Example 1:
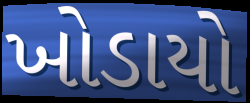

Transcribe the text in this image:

ખોડાયો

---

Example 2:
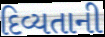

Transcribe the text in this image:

દિવ્યતાની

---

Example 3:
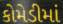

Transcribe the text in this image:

કોમેડીમાં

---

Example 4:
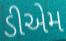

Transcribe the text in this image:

ડીએમ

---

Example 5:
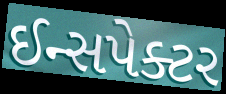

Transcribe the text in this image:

ઈન્સપેક્ટર